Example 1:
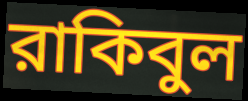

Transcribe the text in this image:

রাকিবুল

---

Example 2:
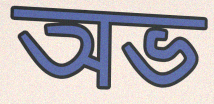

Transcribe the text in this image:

অভ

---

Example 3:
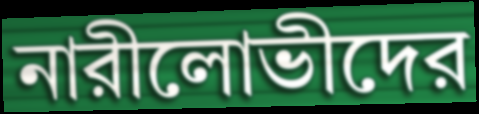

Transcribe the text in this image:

নারীলোভীদের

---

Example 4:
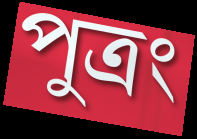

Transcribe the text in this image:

পুত্রং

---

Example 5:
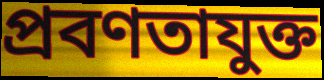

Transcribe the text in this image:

প্রবণতাযুক্ত